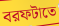
বরফটাতে